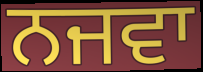
ਨਜਵਾ